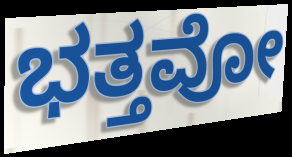
ಭತ್ತವೋ